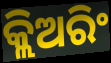
କ୍ଲିଅରିଂ